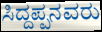
ಸಿದ್ದಪ್ಪನವರು